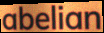
abelian